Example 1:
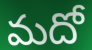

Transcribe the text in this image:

మదో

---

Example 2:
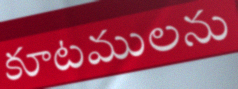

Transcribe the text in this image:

కూటములను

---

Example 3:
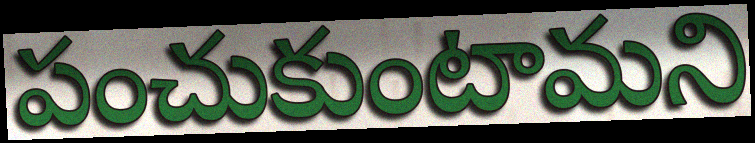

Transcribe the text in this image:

పంచుకుంటామని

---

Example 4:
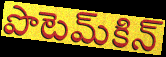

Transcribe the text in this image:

పొటెమ్‌కిన్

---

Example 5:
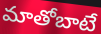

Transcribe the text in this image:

మాతోబాటే